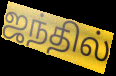
ஜந்தில்